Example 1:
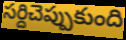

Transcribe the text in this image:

సర్దిచెప్పుకుంది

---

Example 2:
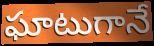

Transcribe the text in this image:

ఘాటుగానే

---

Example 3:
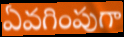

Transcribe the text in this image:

ఏవగింపుగా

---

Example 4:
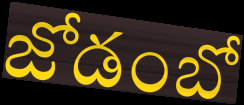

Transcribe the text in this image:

జోడంబో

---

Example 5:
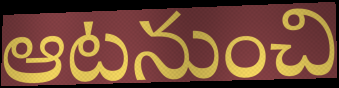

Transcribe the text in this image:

ఆటనుంచి